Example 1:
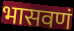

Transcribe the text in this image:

भासवणं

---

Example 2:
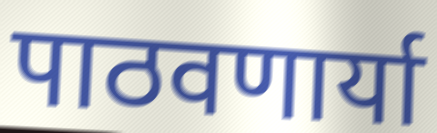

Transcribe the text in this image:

पाठवणार्या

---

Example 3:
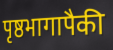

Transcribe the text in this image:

पृष्ठभागापैकी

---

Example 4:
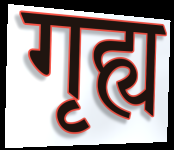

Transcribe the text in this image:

गृह्य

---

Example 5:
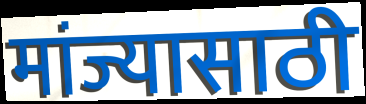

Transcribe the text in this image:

मांज्यासाठी